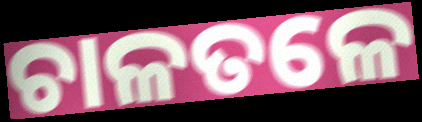
ଚାଳତଳେ